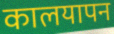
कालयापन